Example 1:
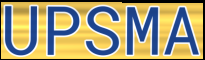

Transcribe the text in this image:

UPSMA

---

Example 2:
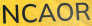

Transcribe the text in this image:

NCAOR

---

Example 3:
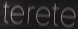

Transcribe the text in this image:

terete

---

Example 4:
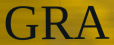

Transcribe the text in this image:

GRA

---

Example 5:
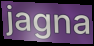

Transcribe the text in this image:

jagna